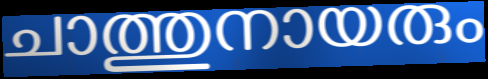
ചാത്തുനായരും